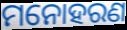
ମନୋହରଣ